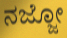
ನಜ್ಜೋ